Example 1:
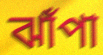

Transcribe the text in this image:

ঝাঁপা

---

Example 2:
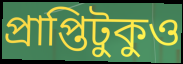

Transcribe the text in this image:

প্রাপ্তিটুকুও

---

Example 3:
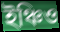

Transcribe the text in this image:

ইঞ্চিও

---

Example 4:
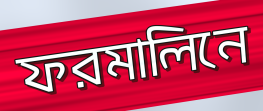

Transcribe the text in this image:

ফরমালিনে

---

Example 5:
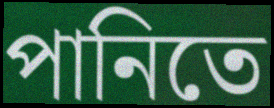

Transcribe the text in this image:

পানিতে